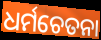
ଧର୍ମଚେତନା